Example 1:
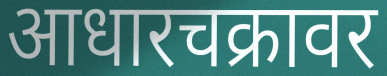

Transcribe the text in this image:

आधारचक्रावर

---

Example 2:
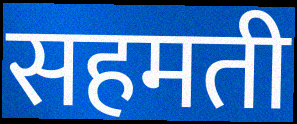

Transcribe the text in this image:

सहमती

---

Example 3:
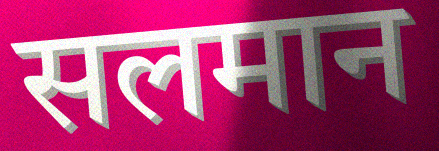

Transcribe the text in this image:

सलमान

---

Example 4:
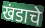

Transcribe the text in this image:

खंडाचे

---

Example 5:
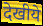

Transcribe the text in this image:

देखीये